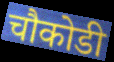
चौकोडी